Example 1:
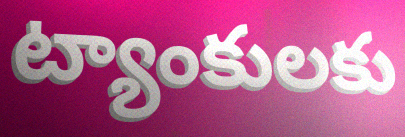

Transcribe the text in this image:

ట్యాంకులకు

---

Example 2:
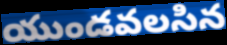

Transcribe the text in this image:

యుండవలసిన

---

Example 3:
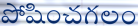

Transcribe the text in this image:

పోషించగలం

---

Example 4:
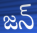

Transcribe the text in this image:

జన్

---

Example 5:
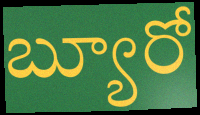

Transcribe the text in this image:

బ్యూరో